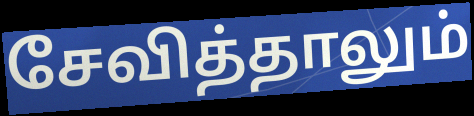
சேவித்தாலும்